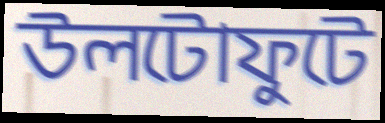
উলটোফুটে